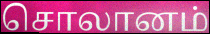
சொலானம்